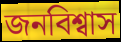
জনবিশ্বাস